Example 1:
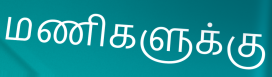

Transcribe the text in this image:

மணிகளுக்கு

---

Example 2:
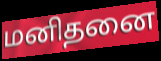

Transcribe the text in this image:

மனிதனை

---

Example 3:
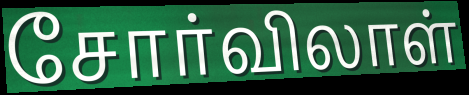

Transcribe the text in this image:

சோர்விலாள்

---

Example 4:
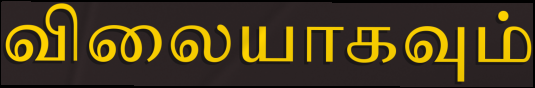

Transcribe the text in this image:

விலையாகவும்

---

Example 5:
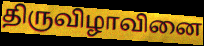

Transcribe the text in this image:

திருவிழாவினை